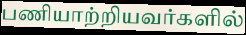
பணியாற்றியவர்களில்